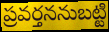
ప్రవర్తననుబట్టి